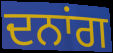
ਦਨਾਂਗ